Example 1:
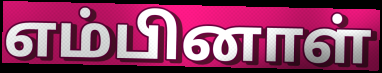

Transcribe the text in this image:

எம்பினாள்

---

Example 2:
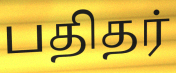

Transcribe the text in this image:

பதிதர்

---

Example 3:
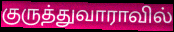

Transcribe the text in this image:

குருத்துவாராவில்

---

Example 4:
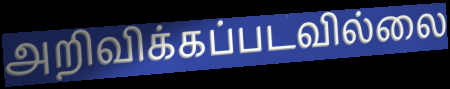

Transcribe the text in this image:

அறிவிக்கப்படவில்லை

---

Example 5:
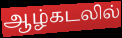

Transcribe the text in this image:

ஆழ்கடலில்